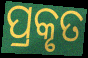
ପ୍ରକୃତ